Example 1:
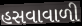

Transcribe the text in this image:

હસવાવાળી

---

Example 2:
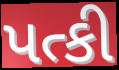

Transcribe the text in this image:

પત્કી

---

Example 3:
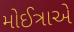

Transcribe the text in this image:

મોઈત્રાએ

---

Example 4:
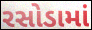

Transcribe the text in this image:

રસોડામાં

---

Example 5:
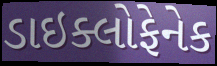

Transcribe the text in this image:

ડાઇક્લોફેનેક